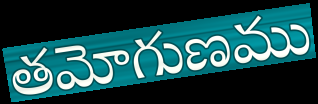
తమోగుణము